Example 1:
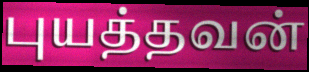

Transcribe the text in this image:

புயத்தவன்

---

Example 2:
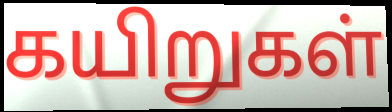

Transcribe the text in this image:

கயிறுகள்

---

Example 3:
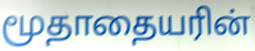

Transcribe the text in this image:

மூதாதையரின்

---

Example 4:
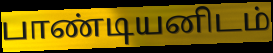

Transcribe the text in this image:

பாண்டியனிடம்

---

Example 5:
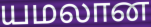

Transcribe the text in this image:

யமலான